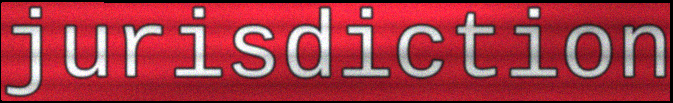
jurisdiction